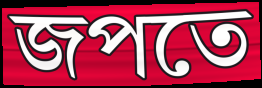
জপতে